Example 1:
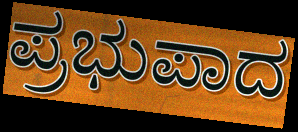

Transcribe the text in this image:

ಪ್ರಭುಪಾದ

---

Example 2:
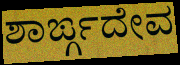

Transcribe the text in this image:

ಶಾರ್ಙ್ಗದೇವ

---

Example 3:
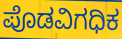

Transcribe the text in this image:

ಪೊಡವಿಗಧಿಕ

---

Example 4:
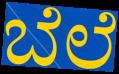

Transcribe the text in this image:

ಬೆಲೆ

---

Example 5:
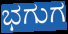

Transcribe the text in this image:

ಭಗುಗ